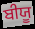
ਬੀਯੂ